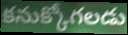
కనుక్కోగలడు